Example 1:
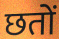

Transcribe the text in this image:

छतों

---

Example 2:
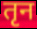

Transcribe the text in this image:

तृन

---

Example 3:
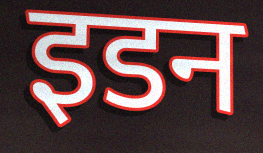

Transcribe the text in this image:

इडन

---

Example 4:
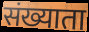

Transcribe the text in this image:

संख्याता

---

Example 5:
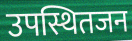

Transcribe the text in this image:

उपस्थितजन